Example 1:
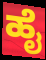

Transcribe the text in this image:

ಹೈ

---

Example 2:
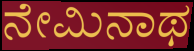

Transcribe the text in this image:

ನೇಮಿನಾಥ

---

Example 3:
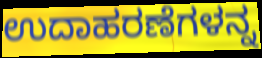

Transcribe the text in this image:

ಉದಾಹರಣೆಗಳನ್ನ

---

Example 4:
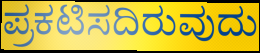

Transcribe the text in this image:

ಪ್ರಕಟಿಸದಿರುವುದು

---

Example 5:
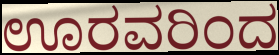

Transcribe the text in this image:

ಊರವರಿಂದ